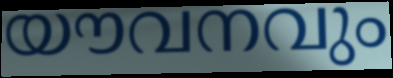
യൗവനവും